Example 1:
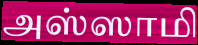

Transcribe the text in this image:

அஸ்ஸாமி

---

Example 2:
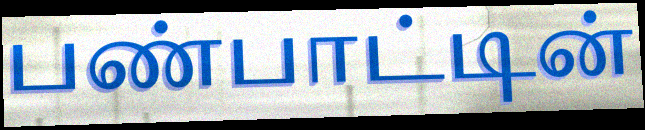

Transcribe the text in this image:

பண்பாட்டின்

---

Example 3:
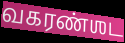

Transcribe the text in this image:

வகரண்ஶட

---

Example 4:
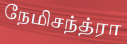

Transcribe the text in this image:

நேமிசந்த்ரா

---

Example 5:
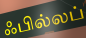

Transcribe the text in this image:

ஃபில்லப்